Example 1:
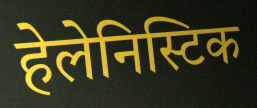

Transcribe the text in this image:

हेलेनिस्टिक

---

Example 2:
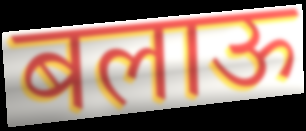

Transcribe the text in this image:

बलाऊ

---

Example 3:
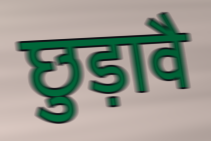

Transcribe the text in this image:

छुड़ावै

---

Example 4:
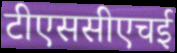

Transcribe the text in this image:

टीएससीएचई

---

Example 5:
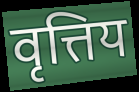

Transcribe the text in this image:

वृत्तिय